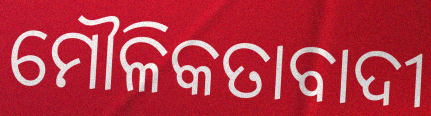
ମୌଳିକତାବାଦୀ